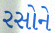
રસોને